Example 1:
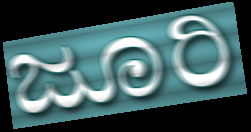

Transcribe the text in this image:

ಜೂರಿ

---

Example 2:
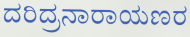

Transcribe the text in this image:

ದರಿದ್ರನಾರಾಯಣರ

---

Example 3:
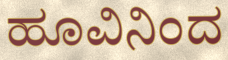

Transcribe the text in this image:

ಹೂವಿನಿಂದ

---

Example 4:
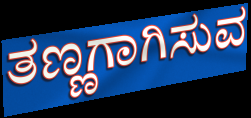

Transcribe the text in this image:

ತಣ್ಣಗಾಗಿಸುವ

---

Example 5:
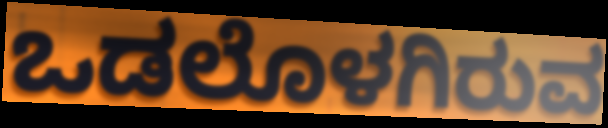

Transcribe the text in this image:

ಒಡಲೊಳಗಿರುವ